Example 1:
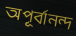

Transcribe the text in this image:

অপূর্বানন্দ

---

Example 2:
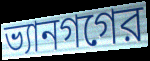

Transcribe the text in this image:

ভ্যানগগের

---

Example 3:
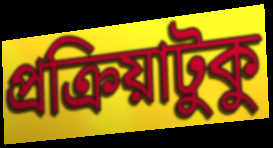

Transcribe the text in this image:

প্রক্রিয়াটুকু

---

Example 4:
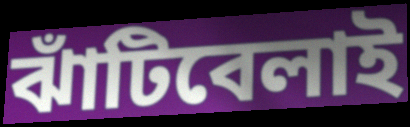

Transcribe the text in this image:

ঝাঁটিবেলাই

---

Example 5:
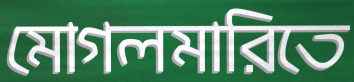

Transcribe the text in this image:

মোগলমারিতে